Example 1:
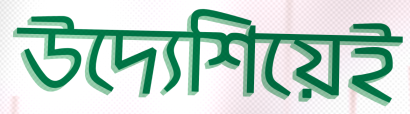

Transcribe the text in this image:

উদ্যেশিয়েই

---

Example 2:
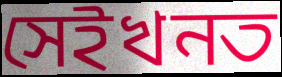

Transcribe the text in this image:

সেইখনত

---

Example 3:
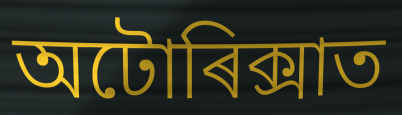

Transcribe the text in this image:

অটোৰিক্সাত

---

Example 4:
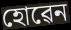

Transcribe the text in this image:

হোৱেন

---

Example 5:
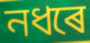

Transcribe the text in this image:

নধৰে